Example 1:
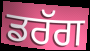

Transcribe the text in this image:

ਡਰੱਗ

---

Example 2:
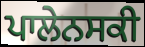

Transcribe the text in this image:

ਪਾਲੇਨਸਕੀ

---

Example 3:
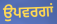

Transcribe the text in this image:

ਉਪਵਰਗਾਂ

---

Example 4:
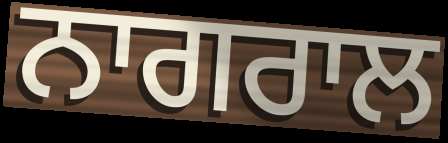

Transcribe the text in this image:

ਨਾਗਰਾਲ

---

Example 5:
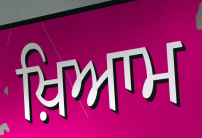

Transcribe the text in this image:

ਖ਼ਿਆਮ